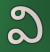
వి